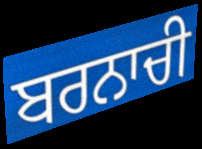
ਬਰਨਾਚੀ